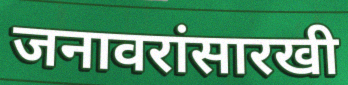
जनावरांसारखी